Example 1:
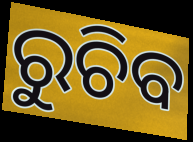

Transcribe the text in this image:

ରୁଚିବ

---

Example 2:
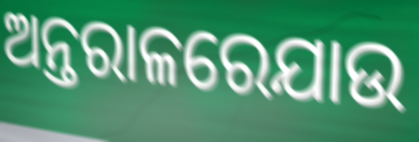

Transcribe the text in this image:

ଅନ୍ତରାଳରେଯାଉ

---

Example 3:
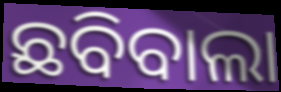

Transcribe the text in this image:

ଛବିବାଲା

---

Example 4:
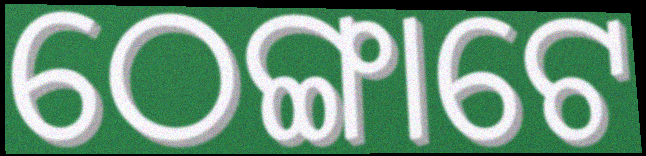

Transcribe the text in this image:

ଠେଙ୍ଗାଟେ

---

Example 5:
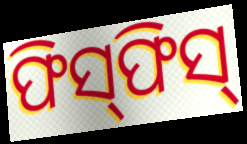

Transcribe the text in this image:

ଫିସ୍‍ଫିସ୍